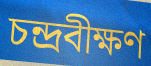
চন্দ্রবীক্ষণ